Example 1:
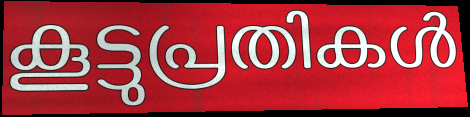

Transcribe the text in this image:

കൂട്ടുപ്രതികൾ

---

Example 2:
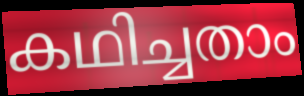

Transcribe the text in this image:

കഥിച്ചതാം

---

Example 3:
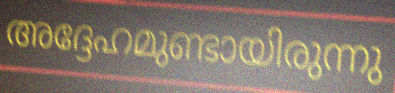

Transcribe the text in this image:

അദ്ദേഹമുണ്ടായിരുന്നു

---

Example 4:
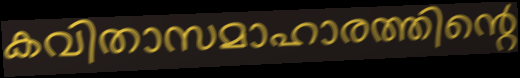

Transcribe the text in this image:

കവിതാസമാഹാരത്തിന്റെ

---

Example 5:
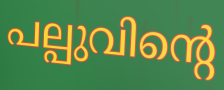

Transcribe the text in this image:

പല്പുവിന്റെ